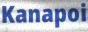
Kanapoi